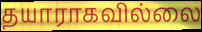
தயாராகவில்லை